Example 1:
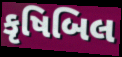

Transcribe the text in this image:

કૃષિબિલ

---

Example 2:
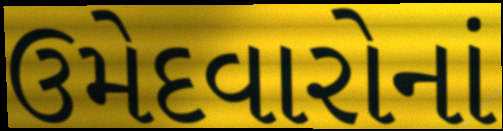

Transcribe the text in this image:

ઉમેદવારોનાં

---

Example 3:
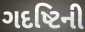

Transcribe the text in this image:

ગદષ્ટિની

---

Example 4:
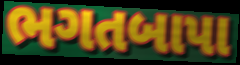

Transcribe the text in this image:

ભગતબાપા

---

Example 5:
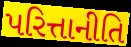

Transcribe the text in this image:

પરિત્તાનીતિ